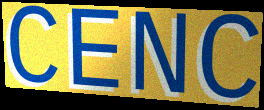
CENC